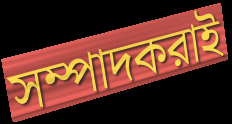
সম্পাদকরাই